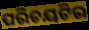
ପରିଚୟଟିର